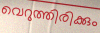
വെറുത്തിരിക്കും